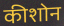
कीशोन